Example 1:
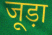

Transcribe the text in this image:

जूड़ा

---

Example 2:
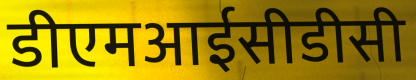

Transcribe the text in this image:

डीएमआईसीडीसी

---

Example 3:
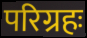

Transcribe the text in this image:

परिग्रहः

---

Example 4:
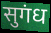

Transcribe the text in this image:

सुगंध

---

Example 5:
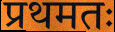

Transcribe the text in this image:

प्रथमतः